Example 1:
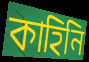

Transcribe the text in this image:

কাহিনি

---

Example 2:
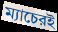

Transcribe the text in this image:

ম্যাচেরই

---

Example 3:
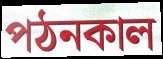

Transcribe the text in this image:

পঠনকাল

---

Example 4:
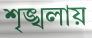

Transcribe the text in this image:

শৃঙ্খলায়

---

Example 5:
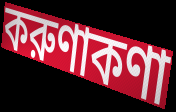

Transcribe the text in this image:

করুণাকণা